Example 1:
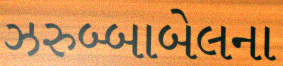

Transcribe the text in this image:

ઝરુબ્બાબેલના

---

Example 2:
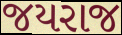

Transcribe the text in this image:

જયરાજ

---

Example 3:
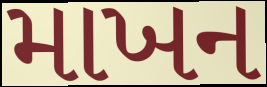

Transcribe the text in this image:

માખન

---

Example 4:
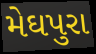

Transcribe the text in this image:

મેઘપુરા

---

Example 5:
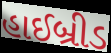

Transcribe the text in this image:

હાઈબ્રીડ